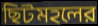
ছিটমহলের